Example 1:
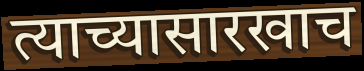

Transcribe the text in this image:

त्याच्यासारखाच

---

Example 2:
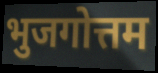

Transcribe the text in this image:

भुजगोत्तम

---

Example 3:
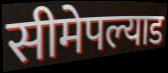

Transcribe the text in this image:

सीमेपल्याड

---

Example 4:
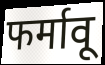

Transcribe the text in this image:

फर्मावू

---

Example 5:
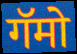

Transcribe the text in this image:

गॅमो